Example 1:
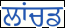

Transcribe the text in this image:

ਲਾਂਚਡ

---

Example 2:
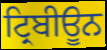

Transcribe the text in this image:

ਟ੍ਰਿਬੀਊਨ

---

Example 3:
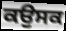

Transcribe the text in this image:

ਕਉਸਕ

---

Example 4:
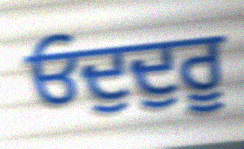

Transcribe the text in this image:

ਓਦੁਦੁਰੂ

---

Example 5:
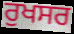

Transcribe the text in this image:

ਰੁਖਸਰ